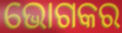
ଭୋଗକର